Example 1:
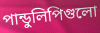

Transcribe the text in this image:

পান্ডুলিপিগুলো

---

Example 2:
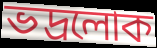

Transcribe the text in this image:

ভদ্রলোক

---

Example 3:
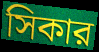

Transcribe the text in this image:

সিকার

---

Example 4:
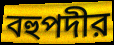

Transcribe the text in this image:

বহুপদীর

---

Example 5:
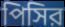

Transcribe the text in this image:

পিসির